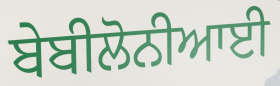
ਬੇਬੀਲੋਨੀਆਈ